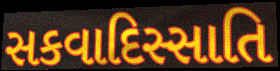
સકવાદિસ્સાતિ